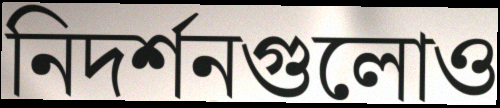
নিদর্শনগুলোও